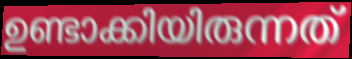
ഉണ്ടാക്കിയിരുന്നത്